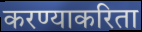
करण्याकरिता